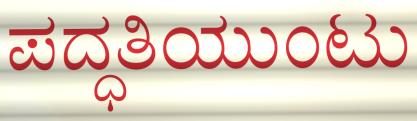
ಪದ್ಧತಿಯುಂಟು